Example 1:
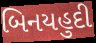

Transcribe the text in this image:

બિનયહુદી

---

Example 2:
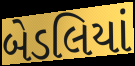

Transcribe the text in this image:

બેડલિયાં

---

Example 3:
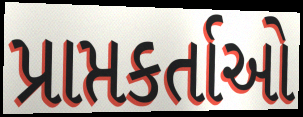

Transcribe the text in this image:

પ્રાપ્તકર્તાઓ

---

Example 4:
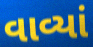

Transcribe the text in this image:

વાવ્યાં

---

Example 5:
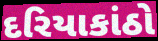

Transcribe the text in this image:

દરિયાકાંઠો